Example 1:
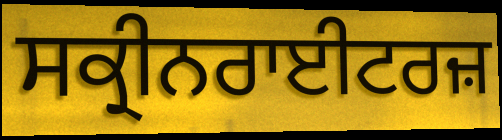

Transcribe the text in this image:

ਸਕ੍ਰੀਨਰਾਈਟਰਜ਼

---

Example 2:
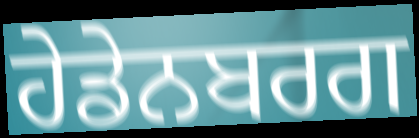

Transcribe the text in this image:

ਹੇਡੇਨਬਰਗ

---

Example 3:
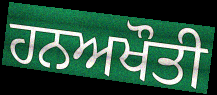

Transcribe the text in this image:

ਹਨਅਖੌਤੀ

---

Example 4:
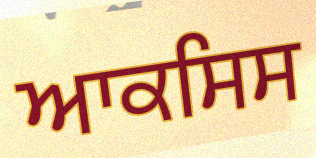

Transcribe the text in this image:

ਆਕਸਿਸ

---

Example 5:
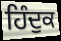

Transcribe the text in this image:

ਹਿੰਦੁਕ